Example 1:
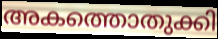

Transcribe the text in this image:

അകത്തൊതുക്കി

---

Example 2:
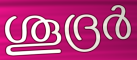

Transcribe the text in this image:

ശൂദ്രർ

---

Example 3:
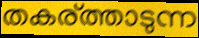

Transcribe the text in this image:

തകര്ത്താടുന്ന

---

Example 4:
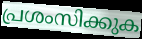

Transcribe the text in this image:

പ്രശംസിക്കുക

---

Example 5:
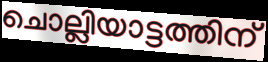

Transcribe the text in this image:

ചൊല്ലിയാട്ടത്തിന്